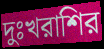
দুঃখরাশির